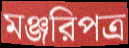
মঞ্জরিপত্র